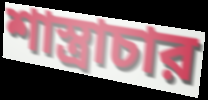
শাস্ত্রাচার